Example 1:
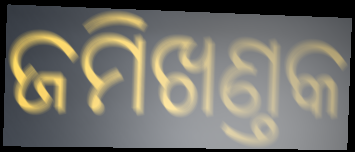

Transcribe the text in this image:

ଜମିଖଣ୍ତକ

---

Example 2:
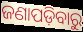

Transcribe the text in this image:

ଜଣାପଡ଼ିବାରୁ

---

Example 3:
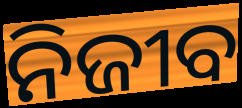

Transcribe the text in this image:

ନିଜୀବ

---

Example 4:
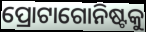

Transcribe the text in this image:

ପ୍ରୋଟାଗୋନିଷ୍ଟକୁ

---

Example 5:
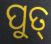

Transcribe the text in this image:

ପୁତ୍